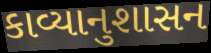
કાવ્યાનુશાસન